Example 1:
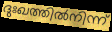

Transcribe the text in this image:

ദുഃഖത്തിൽനിന്ന്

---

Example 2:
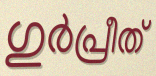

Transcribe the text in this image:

ഗുർപ്രീത്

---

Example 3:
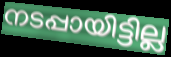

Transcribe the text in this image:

നടപ്പായിട്ടില്ല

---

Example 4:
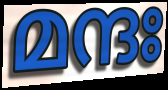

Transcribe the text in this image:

മന്ദഃ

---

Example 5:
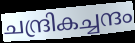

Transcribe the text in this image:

ചന്ദ്രികച്ചന്ദം